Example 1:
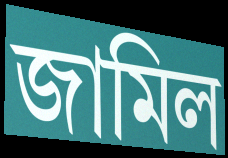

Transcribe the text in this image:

জামিল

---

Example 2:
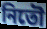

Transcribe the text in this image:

নিতৌ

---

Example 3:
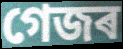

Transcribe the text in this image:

গেজৰ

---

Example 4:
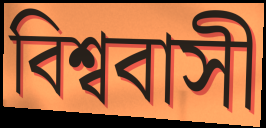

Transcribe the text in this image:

বিশ্ববাসী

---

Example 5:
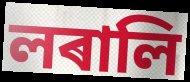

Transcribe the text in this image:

লৰালি